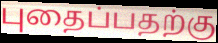
புதைப்பதற்கு